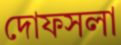
দোফসলা